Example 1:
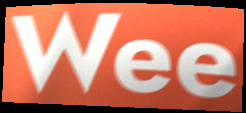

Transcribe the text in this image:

Wee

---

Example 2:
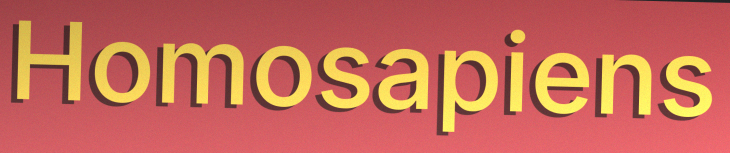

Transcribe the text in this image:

Homosapiens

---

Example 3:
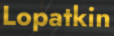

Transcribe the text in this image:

Lopatkin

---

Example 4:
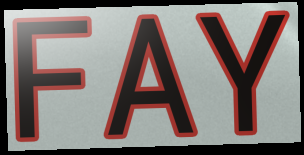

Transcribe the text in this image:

FAY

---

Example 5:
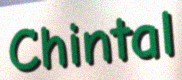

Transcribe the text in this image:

Chintal